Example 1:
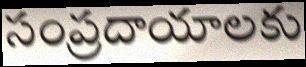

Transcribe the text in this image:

సంప్రదాయాలకు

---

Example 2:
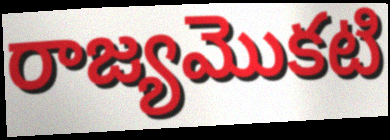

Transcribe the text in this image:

రాజ్యమొకటి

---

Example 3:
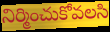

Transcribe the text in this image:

నిర్మించుకోవలసి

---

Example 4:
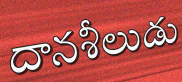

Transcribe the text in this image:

దానశీలుడు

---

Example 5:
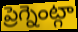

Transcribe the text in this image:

ప్రెగ్నెంట్గా